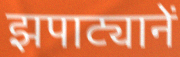
झपाट्यानें